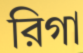
রিগা